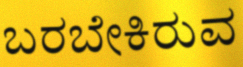
ಬರಬೇಕಿರುವ